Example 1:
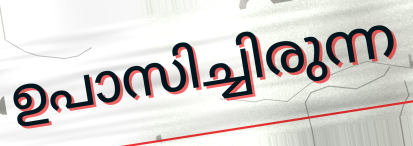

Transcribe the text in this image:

ഉപാസിച്ചിരുന്ന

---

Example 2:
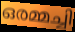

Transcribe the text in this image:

ഒരമ്മച്ചി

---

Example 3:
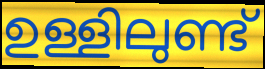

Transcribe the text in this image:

ഉള്ളിലുണ്ട്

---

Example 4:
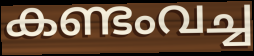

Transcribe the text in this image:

കണ്ടംവച്ച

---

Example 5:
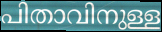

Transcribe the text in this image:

പിതാവിനുള്ള